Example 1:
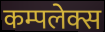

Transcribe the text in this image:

कम्पलेक्स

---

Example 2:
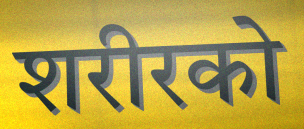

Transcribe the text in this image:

शरीरको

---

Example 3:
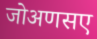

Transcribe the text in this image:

जोअणसए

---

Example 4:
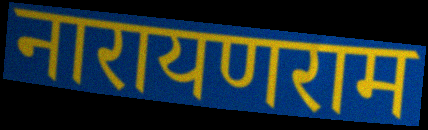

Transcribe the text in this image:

नारायणराम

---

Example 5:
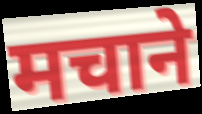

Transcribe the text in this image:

मचाने